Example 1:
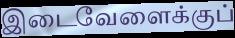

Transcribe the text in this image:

இடைவேளைக்குப்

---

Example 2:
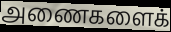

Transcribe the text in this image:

அணைகளைக்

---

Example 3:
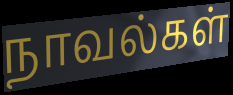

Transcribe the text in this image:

நாவல்கள்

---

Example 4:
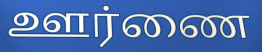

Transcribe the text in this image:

ஊர்ணை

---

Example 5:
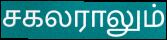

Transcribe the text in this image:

சகலராலும்